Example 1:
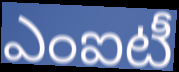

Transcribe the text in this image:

ఎంఐటీ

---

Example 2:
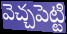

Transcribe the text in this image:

వెచ్చపెట్టి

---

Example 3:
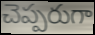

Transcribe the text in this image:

చెప్పరుగా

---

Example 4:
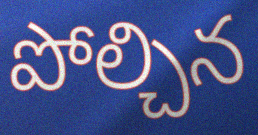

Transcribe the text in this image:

పోల్చిన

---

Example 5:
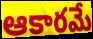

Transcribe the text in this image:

ఆకారమే